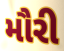
મૌરી